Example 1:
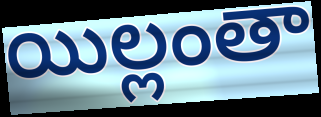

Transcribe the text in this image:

యిల్లంతా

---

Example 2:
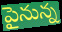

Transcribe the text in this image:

పైనున్న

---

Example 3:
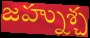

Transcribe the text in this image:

జహ్నుశ్చ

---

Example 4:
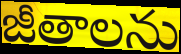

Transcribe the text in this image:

జీతాలను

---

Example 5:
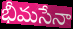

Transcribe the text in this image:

భీమసేనా